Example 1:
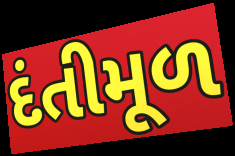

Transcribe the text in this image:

દંતીમૂળ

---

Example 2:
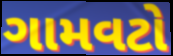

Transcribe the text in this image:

ગામવટો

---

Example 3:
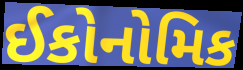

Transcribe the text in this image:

ઈકોનોમિક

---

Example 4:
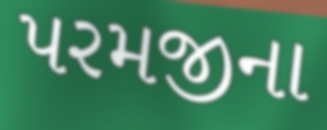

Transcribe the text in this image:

પરમજીના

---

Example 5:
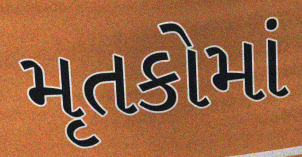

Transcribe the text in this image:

મૃતકોમાં